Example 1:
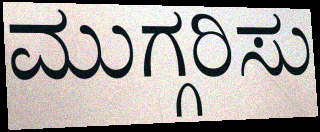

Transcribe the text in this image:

ಮುಗ್ಗರಿಸು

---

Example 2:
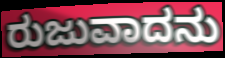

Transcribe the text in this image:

ರುಜುವಾದನು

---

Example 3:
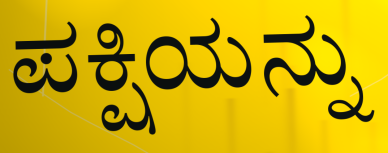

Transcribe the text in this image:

ಪಕ್ಷಿಯನ್ನು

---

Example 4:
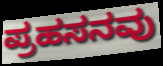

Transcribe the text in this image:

ಪ್ರಹಸನವು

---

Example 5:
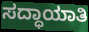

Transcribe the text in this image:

ಸದ್ಧಾಯಾತಿ